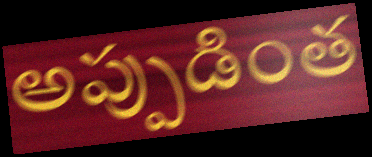
అప్పుడింత